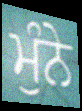
ਮੁੰਨੇ